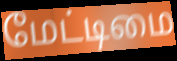
மேட்டிமை